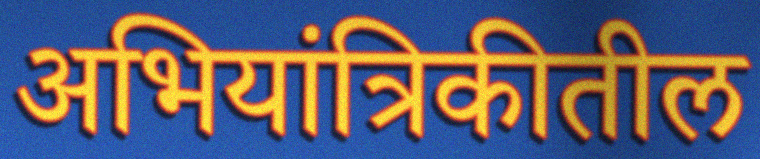
अभियांत्रिकीतील